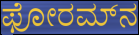
ಫೋರಮ್‌ನ